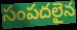
సంపదలైన